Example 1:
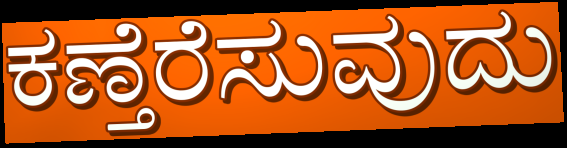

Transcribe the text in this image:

ಕಣ್ತೆರೆಸುವುದು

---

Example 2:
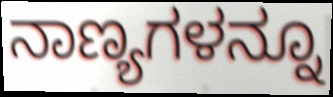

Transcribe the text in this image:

ನಾಣ್ಯಗಳನ್ನೂ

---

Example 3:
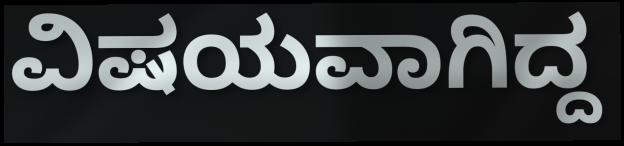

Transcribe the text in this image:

ವಿಷಯವಾಗಿದ್ದ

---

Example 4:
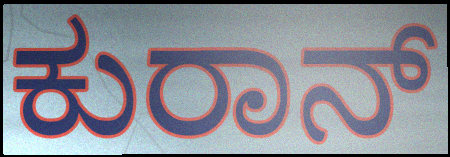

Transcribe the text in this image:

ಕುರಾನ್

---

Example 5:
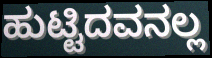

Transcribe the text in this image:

ಹುಟ್ಟಿದವನಲ್ಲ